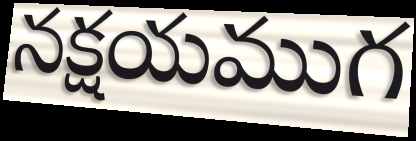
నక్షయముగ